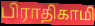
பிராதிகாமி